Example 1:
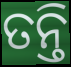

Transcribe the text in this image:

ତନ୍ତି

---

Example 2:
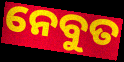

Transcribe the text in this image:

ନେବୁତ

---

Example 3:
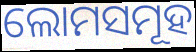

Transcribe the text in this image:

ଲୋମସମୂହ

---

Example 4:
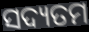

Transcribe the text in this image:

ସଦ୍ୟତମ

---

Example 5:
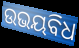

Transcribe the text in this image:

ଉଭୟବିଧ